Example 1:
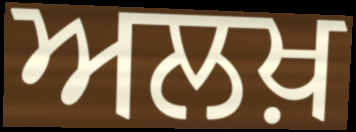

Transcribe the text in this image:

ਅਲਖ਼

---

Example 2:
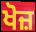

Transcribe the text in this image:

ਖੋਜ਼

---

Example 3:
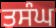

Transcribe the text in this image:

ਤਸੰਘ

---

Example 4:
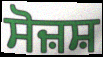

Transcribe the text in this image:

ਸੋਜ਼ਸ਼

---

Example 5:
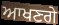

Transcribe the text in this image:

ਆਖਣਗੇ